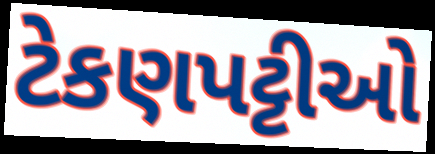
ટેકણપટ્ટીઓ